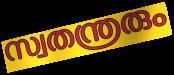
സ്വതന്ത്രരും